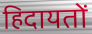
हिदायतों